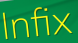
Infix